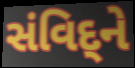
સંવિદ્‌ને